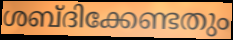
ശബ്ദിക്കേണ്ടതും